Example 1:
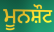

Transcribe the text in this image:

ਮੂਨਸ਼ੌਟ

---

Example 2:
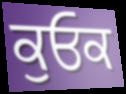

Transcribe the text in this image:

ਕੁਓਕ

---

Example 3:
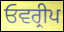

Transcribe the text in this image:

ਓਵਰ੍ਰੀਪ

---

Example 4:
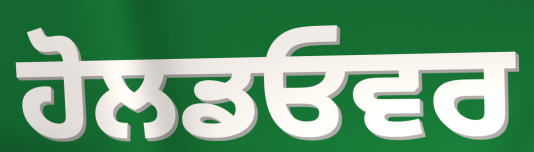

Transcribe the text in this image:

ਹੋਲਡਓਵਰ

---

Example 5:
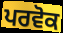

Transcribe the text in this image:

ਪਰਵੋਕ